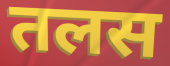
तलस